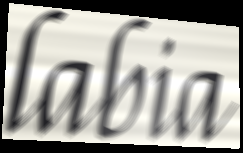
labia